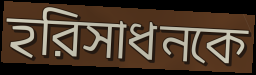
হরিসাধনকে